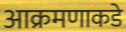
आक्रमणाकडे